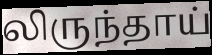
லிருந்தாய்